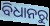
ବିଧାନରୁ